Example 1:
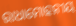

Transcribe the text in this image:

ରାଧାମୋହନୀୟ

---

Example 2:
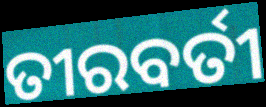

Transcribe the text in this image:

ତୀରବର୍ତୀ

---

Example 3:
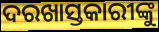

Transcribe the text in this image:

ଦରଖାସ୍ତକାରୀଙ୍କୁ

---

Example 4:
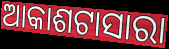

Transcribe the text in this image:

ଆକାଶଟାସାରା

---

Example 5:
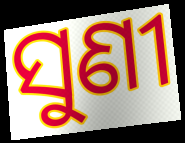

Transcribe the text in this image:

ସୁଣୀ